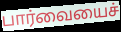
பார்வையைச்